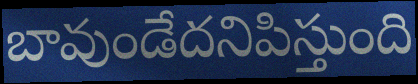
బావుండేదనిపిస్తుంది